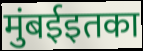
मुंबईइतका